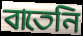
বাতেনি